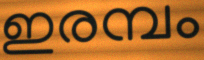
ഇരമ്പം